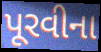
પૂરવીના